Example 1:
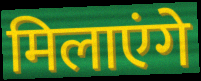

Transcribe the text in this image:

मिलाएंगे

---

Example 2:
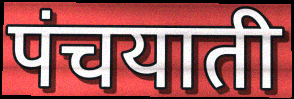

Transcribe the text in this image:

पंचयाती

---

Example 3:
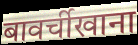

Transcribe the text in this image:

बावर्चीखाना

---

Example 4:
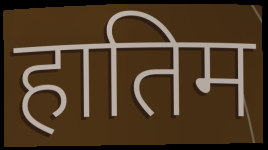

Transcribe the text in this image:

हातिम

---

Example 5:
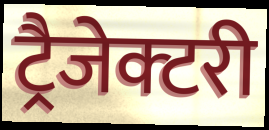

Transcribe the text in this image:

ट्रैजेक्‍टरी